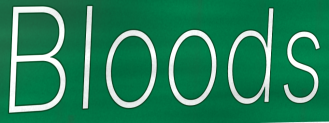
Bloods